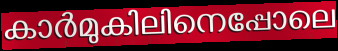
കാർമുകിലിനെപ്പോലെ